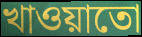
খাওয়াতো